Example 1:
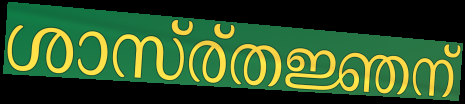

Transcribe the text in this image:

ശാസ്ര്തജ്ഞന്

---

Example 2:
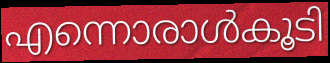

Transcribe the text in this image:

എന്നൊരാൾകൂടി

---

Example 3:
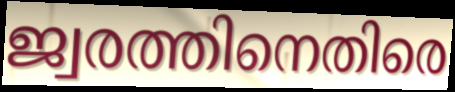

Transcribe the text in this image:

ജ്വരത്തിനെതിരെ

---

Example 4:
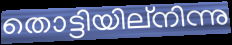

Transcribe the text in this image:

തൊട്ടിയില്നിന്നു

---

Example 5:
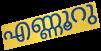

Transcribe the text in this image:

എണ്ണൂറു